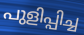
പുളിപ്പിച്ച